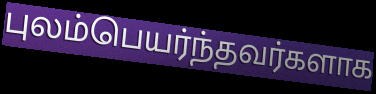
புலம்பெயர்ந்தவர்களாக